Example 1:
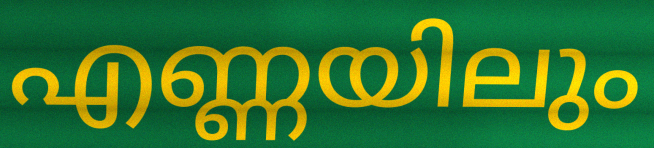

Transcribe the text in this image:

എണ്ണയിലും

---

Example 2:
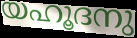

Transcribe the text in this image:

യഹൂദനു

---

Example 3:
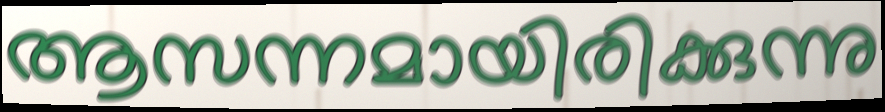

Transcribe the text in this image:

ആസന്നമായിരിക്കുന്നു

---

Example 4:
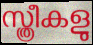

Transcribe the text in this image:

സ്ത്രീകളു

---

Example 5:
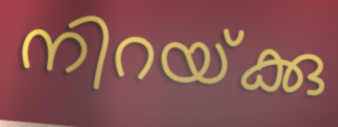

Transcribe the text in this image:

നിറയ്‌ക്കു